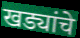
खड्यांचे